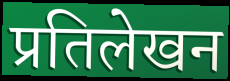
प्रतिलेखन